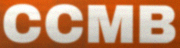
CCMB